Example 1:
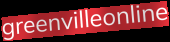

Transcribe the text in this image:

greenvilleonline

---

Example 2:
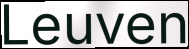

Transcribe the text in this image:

Leuven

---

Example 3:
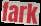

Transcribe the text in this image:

fark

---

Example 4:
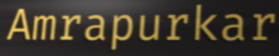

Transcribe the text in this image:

Amrapurkar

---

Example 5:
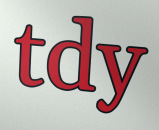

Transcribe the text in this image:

tdy